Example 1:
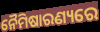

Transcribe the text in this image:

ନୈମିଷାରଣ୍ୟରେ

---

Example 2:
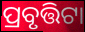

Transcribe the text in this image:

ପ୍ରବୃତ୍ତିଟା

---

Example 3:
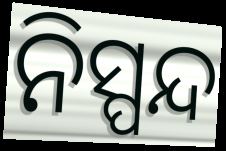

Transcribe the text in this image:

ନିସ୍ପନ୍ଦ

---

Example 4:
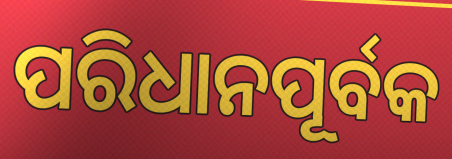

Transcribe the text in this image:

ପରିଧାନପୂର୍ବକ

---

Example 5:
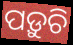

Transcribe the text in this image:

ପଡ଼ୁଚି